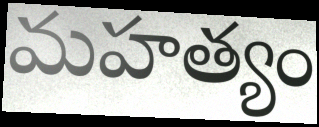
మహత్యం